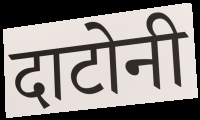
दाटोनी